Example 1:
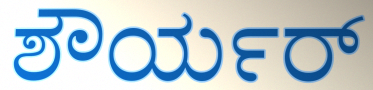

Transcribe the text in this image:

ಶೌರ್ಯರ್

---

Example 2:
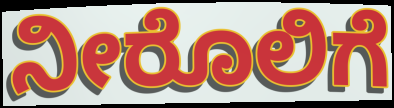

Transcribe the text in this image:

ನೀರೊಲಿಗೆ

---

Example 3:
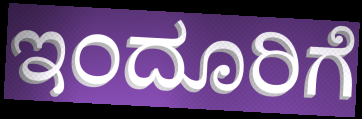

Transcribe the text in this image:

ಇಂದೂರಿಗೆ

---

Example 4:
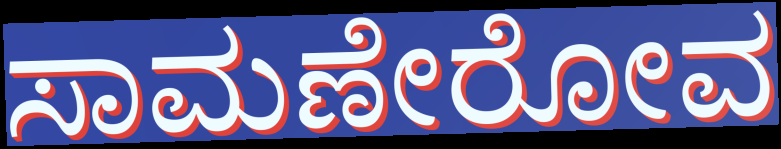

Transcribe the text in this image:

ಸಾಮಣೇರೋವ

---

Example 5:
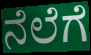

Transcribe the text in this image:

ನೆಲೆಗೆ